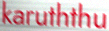
karuththu